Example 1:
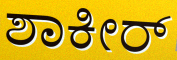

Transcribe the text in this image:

ಶಾಕೀರ್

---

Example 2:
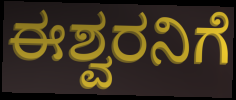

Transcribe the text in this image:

ಈಶ್ವರನಿಗೆ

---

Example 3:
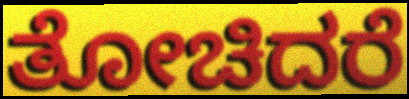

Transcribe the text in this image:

ತೋಚಿದರೆ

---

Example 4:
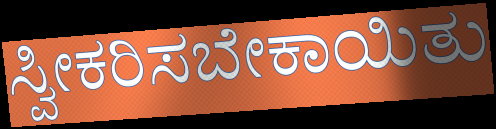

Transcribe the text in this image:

ಸ್ವೀಕರಿಸಬೇಕಾಯಿತು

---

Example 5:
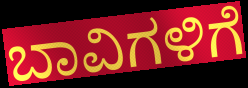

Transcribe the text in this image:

ಬಾವಿಗಳಿಗೆ